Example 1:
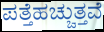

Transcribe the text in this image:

ಪತ್ತೆಹಚ್ಚುತ್ತವೆ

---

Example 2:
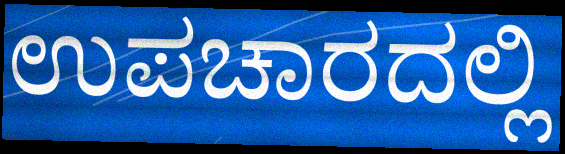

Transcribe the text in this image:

ಉಪಚಾರದಲ್ಲಿ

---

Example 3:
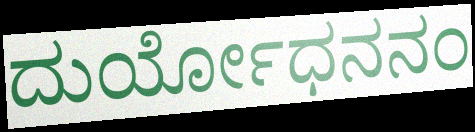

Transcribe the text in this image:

ದುರ್ಯೋಧನನಂ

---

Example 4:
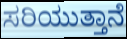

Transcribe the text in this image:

ಸರಿಯುತ್ತಾನೆ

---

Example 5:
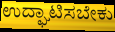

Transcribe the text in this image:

ಉದ್ಘಾಟಿಸಬೇಕು